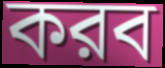
করব